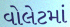
વોલેટમાં